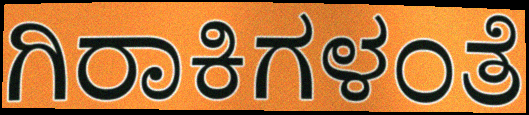
ಗಿರಾಕಿಗಳಂತೆ